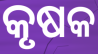
କୃଷକ